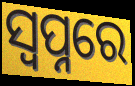
ସ୍ୱପ୍ନରେ